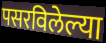
पसरविलेल्या